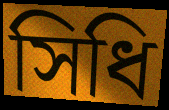
সিধি